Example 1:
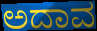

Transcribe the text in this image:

ಅದಾವ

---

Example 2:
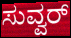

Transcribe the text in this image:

ಸುವ್ವರ್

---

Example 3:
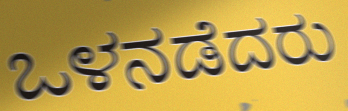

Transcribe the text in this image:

ಒಳನಡೆದರು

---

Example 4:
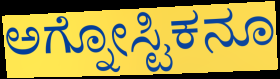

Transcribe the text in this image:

ಅಗ್ನೋಸ್ಟಿಕನೂ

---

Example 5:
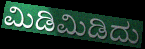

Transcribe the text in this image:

ಮಿಡಿಮಿಡಿದು